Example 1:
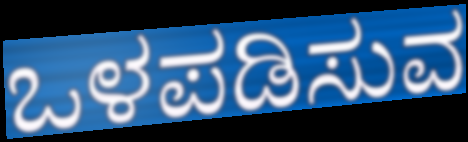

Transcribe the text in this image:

ಒಳಪಡಿಸುವ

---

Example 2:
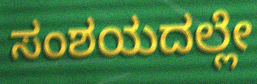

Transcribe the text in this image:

ಸಂಶಯದಲ್ಲೇ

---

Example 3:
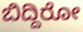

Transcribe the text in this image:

ಬಿದ್ದಿರೋ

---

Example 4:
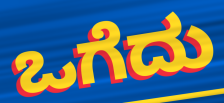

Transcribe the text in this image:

ಒಗೆದು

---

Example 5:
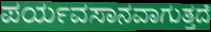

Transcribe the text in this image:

ಪರ್ಯವಸಾನವಾಗುತ್ತದೆ